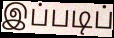
இப்படிப்